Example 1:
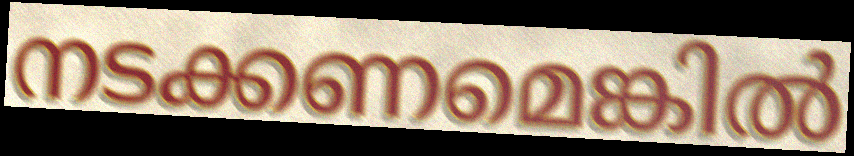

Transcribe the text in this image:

നടക്കണമെങ്കിൽ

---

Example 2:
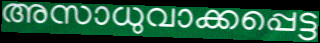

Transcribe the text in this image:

അസാധുവാക്കപ്പെട്ട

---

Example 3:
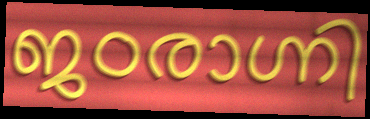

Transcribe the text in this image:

ജഠരാഗ്നി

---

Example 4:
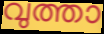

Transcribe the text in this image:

വുത്താ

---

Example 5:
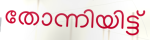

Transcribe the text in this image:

തോന്നിയിട്ട്